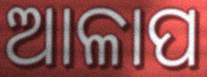
ଆଳାପ